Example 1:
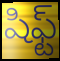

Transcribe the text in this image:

షిఫ్ట్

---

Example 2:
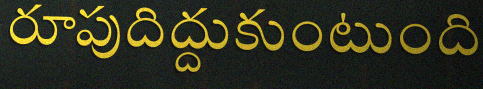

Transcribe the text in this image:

రూపుదిద్దుకుంటుంది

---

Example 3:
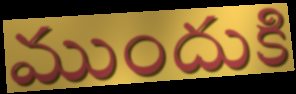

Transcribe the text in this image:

ముందుకి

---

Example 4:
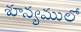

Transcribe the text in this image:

శూన్యములో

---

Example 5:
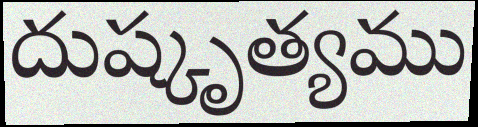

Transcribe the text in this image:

దుష్కృత్యము